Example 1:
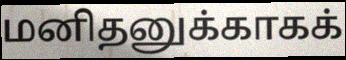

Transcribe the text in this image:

மனிதனுக்காகக்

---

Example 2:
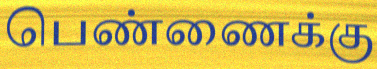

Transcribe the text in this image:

பெண்ணைக்கு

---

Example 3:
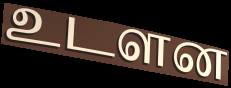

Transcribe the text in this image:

உடளன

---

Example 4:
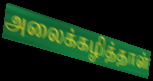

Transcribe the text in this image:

அலைக்கழித்தாள்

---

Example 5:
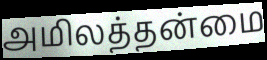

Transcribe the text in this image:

அமிலத்தன்மை